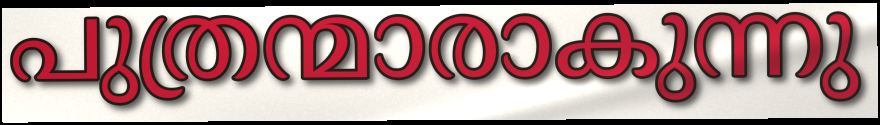
പുത്രന്മാരാകുന്നു